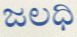
ಜಲಧಿ